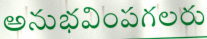
అనుభవింపగలరు